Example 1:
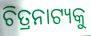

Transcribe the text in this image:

ଚିତ୍ରନାଟ୍ୟକୁ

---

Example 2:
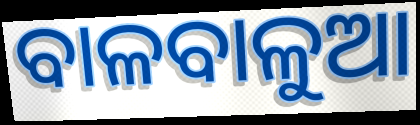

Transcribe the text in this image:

ବାଳବାଳୁଆ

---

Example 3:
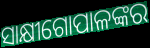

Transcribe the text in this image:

ସାକ୍ଷୀଗୋପାଳଙ୍କର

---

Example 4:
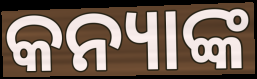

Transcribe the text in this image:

କନ୍ୟାଙ୍କ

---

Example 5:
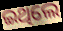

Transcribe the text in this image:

ଇଥିଲେ